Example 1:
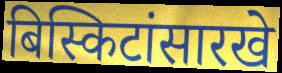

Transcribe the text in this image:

बिस्किटांसारखे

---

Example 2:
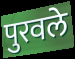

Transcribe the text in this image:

पुरवले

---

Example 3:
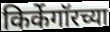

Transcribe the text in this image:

किर्केगॉरच्या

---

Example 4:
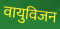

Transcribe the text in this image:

वायुविजन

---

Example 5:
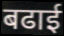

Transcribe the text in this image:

बढाई